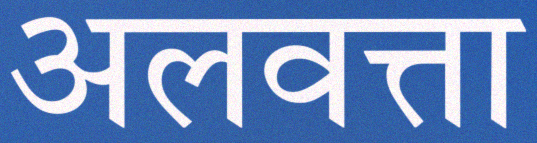
अलवत्ता